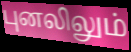
புனலிலும்